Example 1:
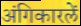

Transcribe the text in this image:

अंगिकारलें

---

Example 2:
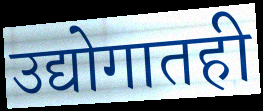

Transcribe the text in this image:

उद्योगातही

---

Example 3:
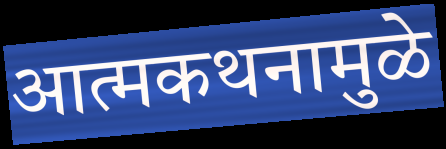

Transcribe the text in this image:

आत्मकथनामुळे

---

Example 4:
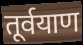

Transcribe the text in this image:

तूर्वयाण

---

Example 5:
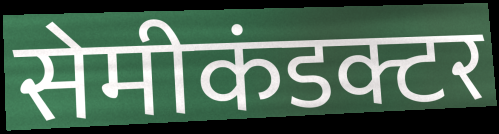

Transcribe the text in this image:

सेमीकंडक्टर